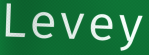
Levey